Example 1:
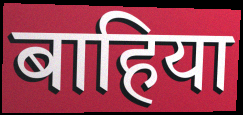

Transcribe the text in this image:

बाहिया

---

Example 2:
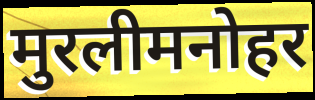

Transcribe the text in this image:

मुरलीमनोहर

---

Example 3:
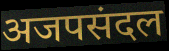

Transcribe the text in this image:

अजपसंदल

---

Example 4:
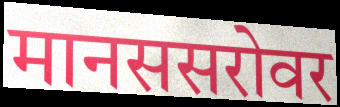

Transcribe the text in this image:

मानससरोवर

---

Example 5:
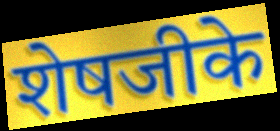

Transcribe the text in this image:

शेषजीके